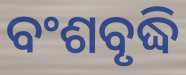
ବଂଶବୃଦ୍ଧି